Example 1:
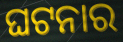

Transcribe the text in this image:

ଘଟନାର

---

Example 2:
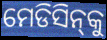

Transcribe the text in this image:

ମେଡିସିନ୍‌କୁ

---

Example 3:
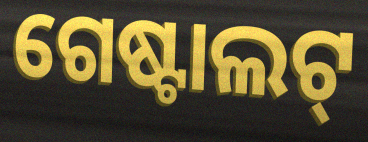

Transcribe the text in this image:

ଗେଷ୍ଟାଲଟ୍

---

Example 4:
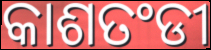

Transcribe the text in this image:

କାଶତଂଡୀ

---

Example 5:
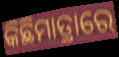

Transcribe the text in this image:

କିଛିମାତ୍ରାରେ